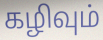
கழிவும்